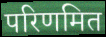
परिणमित